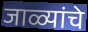
जाळ्यांचे